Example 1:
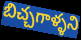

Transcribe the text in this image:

బిచ్చగాళ్ళని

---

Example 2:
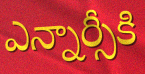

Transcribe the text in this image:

ఎన్నార్సీకి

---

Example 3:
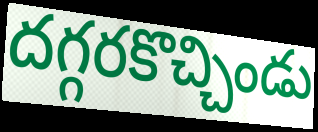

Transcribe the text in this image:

దగ్గరకొచ్చిండు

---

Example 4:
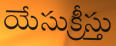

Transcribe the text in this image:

యేసుక్రీస్తు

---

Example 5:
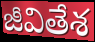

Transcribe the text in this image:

జీవితేశ